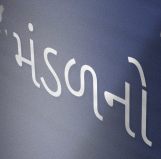
મંડળનો